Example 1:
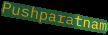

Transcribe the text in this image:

Pushparatnam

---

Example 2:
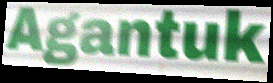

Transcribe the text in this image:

Agantuk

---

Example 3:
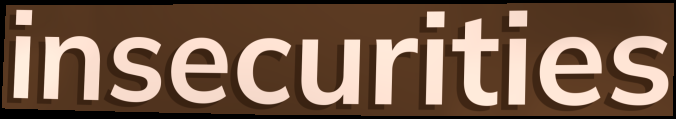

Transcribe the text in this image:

insecurities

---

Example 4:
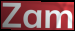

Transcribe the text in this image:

Zam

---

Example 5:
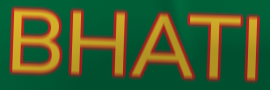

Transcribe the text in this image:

BHATI